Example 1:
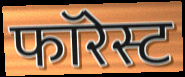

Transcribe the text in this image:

फॉरेस्‍ट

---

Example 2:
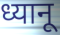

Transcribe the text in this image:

ध्यानू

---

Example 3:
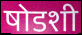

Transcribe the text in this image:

षोडशी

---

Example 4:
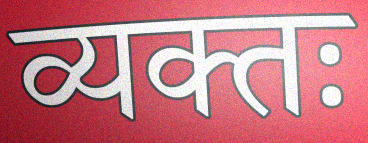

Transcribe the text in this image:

व्यक्तः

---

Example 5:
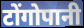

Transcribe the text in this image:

टोंगोपानी